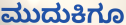
ಮುದುಕಿಗೂ